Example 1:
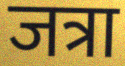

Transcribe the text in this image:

जत्रा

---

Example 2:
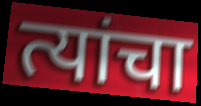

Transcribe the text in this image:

त्यांचा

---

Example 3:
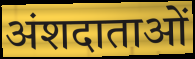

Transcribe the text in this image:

अंशदाताओं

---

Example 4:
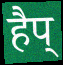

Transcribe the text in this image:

हैप्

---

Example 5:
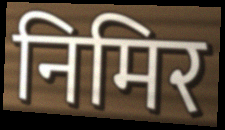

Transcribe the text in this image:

निमिर